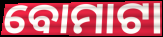
ବୋମାଟା